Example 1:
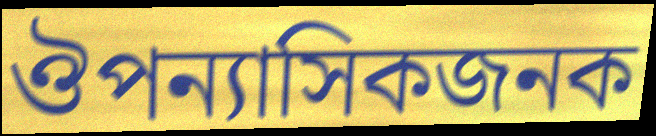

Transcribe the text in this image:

ঔপন্যাসিকজনক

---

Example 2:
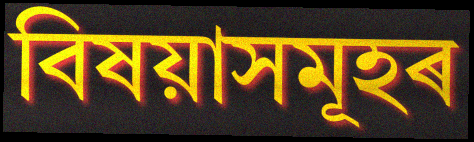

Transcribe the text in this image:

বিষয়াসমূহৰ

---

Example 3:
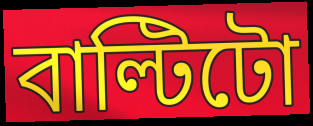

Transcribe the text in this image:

বাল্টিটো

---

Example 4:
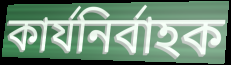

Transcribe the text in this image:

কাৰ্যনিৰ্বাহক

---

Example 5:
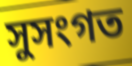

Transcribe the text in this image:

সুসংগত